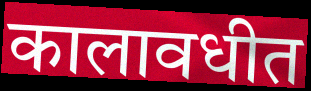
कालावधीत